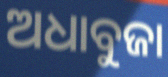
ଅଧାବୁଜା